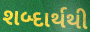
શબ્દાર્થથી